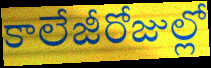
కాలేజీరోజుల్లో